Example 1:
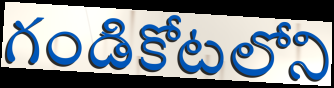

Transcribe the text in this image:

గండికోటలోని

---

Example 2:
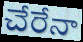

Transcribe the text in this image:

చేరేనా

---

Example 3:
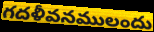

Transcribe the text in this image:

గదళీవనములందు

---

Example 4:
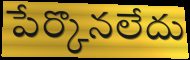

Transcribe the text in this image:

పేర్కొనలేదు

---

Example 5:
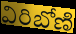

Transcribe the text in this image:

విరిబోణి